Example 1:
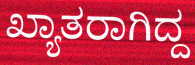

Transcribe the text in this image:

ಖ್ಯಾತರಾಗಿದ್ದ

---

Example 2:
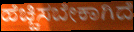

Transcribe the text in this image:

ಹೆಚ್ಚಿಸಬೇಕಾಗಿದೆ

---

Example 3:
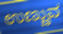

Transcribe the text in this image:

ಉಣ್ಣುವ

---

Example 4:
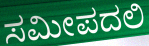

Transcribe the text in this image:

ಸಮೀಪದಲಿ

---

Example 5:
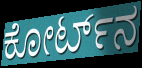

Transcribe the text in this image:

ಕೋರ್ಟ್‌ನ